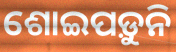
ଶୋଇପଡ଼ୁନି